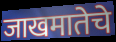
जाखमातेचे